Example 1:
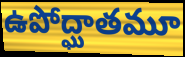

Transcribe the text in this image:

ఉపోద్ఘాతమూ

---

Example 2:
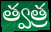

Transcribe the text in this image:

త్వత్ర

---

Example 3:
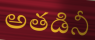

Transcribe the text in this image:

అతడినీ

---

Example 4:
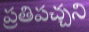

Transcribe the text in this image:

ప్రతిపచ్చని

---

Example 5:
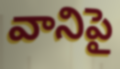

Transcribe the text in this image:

వానిపై